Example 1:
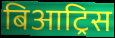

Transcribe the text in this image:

बिआट्रिस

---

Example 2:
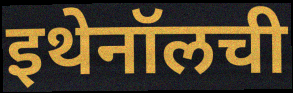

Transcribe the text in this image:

इथेनॉलची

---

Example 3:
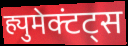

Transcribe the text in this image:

ह्युमेक्टंट्स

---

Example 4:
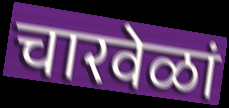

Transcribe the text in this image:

चारवेळां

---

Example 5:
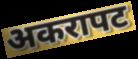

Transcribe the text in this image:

अकरापट